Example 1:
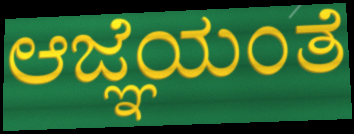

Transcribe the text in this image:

ಆಜ್ಞೆಯಂತೆ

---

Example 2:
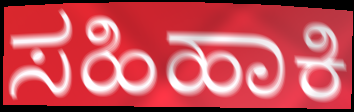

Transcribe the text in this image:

ಸಹಿಹಾಕಿ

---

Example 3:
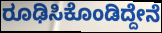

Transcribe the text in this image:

ರೂಢಿಸಿಕೊಂಡಿದ್ದೇನೆ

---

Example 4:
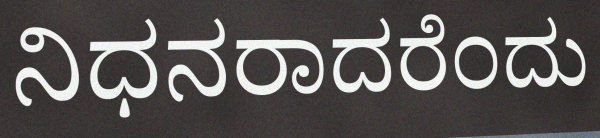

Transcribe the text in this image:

ನಿಧನರಾದರೆಂದು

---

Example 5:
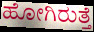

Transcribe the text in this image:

ಹೋಗಿರುತ್ತೆ